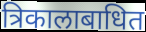
त्रिकालाबाधित